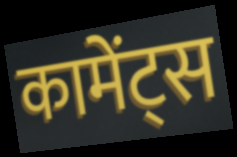
कामेंट्स